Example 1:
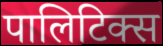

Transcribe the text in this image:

पालिटिक्स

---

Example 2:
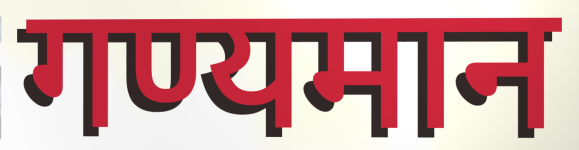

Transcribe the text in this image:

गण्यमान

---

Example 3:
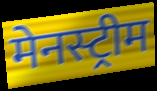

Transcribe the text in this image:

मेनस्‍ट्रीम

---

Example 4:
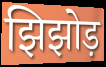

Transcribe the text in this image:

झिझोड़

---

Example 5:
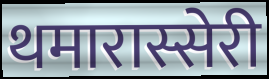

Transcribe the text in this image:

थमारास्सेरी